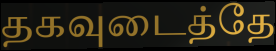
தகவுடைத்தே